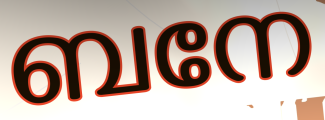
ബനേ